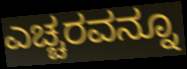
ಎಚ್ಚರವನ್ನೂ